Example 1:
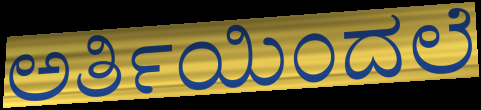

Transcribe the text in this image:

ಅರ್ತಿಯಿಂದಲೆ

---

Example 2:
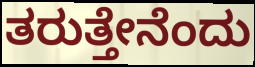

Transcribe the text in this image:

ತರುತ್ತೇನೆಂದು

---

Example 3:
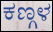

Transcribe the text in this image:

ಕಣ್ಗಳ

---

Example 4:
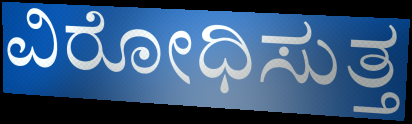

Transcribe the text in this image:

ವಿರೋಧಿಸುತ್ತ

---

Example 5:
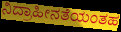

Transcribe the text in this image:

ನಿದ್ರಾಹೀನತೆಯಂತಹ